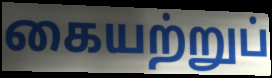
கையற்றுப்